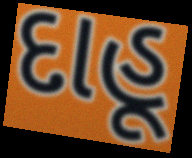
દાહૂ